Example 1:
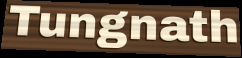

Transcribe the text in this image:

Tungnath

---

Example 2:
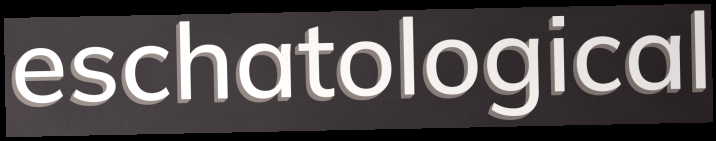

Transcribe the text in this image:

eschatological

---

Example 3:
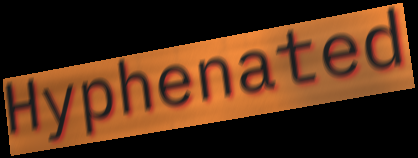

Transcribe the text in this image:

Hyphenated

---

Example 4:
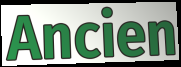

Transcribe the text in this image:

Ancien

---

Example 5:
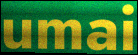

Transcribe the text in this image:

umai